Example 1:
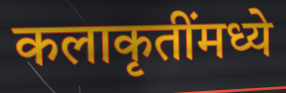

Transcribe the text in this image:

कलाकृतींमध्ये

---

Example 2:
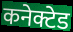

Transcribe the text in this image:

कनेक्टेड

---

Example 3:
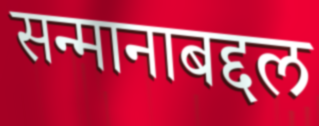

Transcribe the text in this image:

सन्मानाबद्दल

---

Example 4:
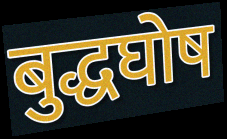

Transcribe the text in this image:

बुद्धघोष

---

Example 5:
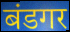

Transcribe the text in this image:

बंडगर